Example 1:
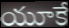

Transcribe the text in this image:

యూకే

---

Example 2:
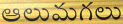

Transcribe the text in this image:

ఆలుమగలు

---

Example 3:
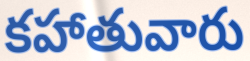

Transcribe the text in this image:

కహాతువారు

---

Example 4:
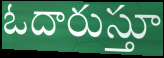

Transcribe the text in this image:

ఓదారుస్తూ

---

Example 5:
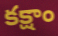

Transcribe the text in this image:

కక్షాం